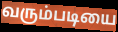
வரும்படியை